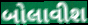
બોલાવીશ